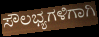
ಸೌಲಭ್ಯಗಳಿಗಾಗಿ